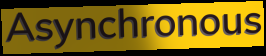
Asynchronous